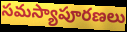
సమస్యాపూరణలు